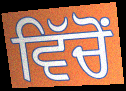
ਵਿੱਚੋੰ